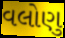
વલોણુ